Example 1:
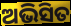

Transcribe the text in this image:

ଅଭିସିତ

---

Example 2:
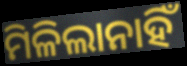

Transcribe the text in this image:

ମିଳିଲାନାହିଁ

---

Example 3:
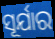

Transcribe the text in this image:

ସୂର୍ଯାର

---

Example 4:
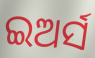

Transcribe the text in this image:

ଇଅର୍ସ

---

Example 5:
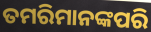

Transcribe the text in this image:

ତମରିମାନଙ୍କପରି